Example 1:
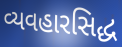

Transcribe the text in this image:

વ્યવહારસિદ્ધ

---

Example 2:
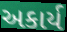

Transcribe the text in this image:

અકાર્ય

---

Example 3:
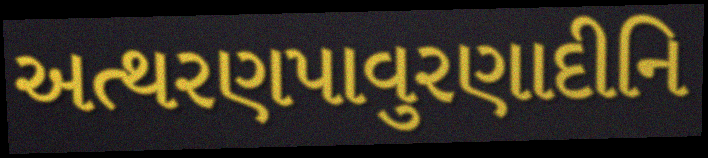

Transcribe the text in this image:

અત્થરણપાવુરણાદીનિ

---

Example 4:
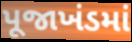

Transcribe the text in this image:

પૂજાખંડમાં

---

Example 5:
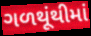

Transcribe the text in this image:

ગળથૂંથીમાં